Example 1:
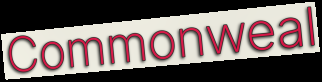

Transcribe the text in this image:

Commonweal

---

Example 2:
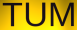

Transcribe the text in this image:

TUM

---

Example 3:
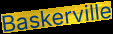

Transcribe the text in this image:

Baskerville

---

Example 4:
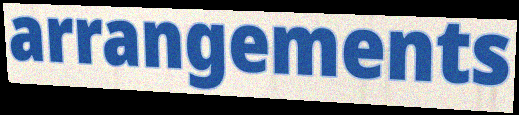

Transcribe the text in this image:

arrangements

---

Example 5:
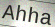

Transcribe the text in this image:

Ahha